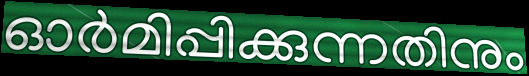
ഓർമിപ്പിക്കുന്നതിനും